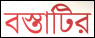
বস্তাটির